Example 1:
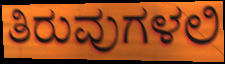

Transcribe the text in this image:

ತಿರುವುಗಳಲಿ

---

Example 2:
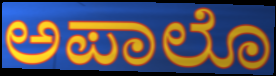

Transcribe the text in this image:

ಅಪಾಲೊ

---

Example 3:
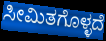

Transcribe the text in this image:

ಸೀಮಿತಗೊಳ್ಳದೆ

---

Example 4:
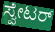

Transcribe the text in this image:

ಸ್ವೇಟರ್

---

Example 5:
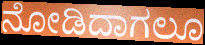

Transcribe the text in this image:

ನೋಡಿದಾಗಲೂ